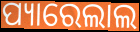
ପ୍ୟାରେଲାଲ